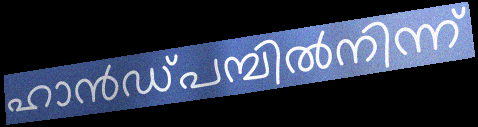
ഹാൻഡ്പമ്പിൽനിന്ന്